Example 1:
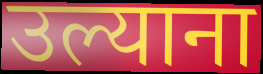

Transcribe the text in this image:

उल्याना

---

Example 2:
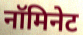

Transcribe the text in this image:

नॉमिनेट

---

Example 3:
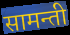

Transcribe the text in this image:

सामन्ती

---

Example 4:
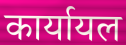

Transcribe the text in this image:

कार्यायल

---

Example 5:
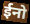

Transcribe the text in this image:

ईनो